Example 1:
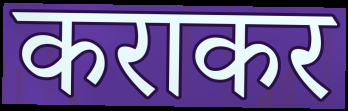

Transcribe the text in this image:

कराकर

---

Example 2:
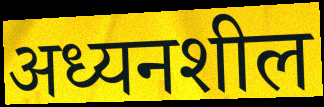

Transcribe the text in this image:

अध्यनशील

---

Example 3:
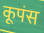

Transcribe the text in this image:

कूपंस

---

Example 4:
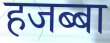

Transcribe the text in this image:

हजब्बा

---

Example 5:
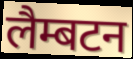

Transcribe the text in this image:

लैम्बटन